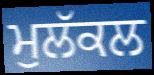
ਮੁਲੱਕਲ